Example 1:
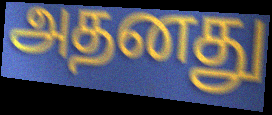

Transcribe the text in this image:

அதனது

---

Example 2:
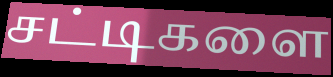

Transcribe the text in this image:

சட்டிகளை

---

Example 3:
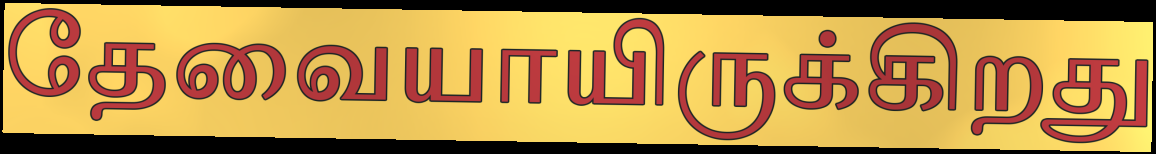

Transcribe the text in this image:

தேவையாயிருக்கிறது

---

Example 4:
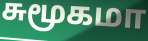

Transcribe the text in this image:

சுமூகமா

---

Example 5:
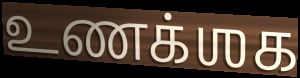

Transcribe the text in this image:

உணக்ஶக